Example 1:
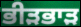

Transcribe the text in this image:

ਭੀੜਭਾੜ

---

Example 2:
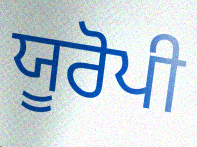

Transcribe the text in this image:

ਯੂਰੋਪੀ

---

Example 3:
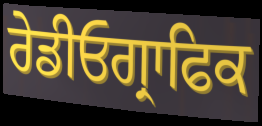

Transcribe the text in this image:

ਰੇਡੀਓਗ੍ਰਾਫਿਕ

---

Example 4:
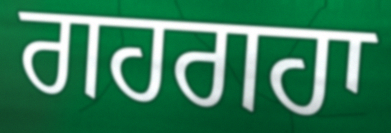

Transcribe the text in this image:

ਗਹਗਹਾ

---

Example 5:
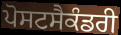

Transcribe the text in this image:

ਪੋਸਟਸੈਕੰਡਰੀ